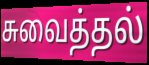
சுவைத்தல்